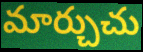
మార్చుచు